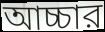
আচ্চার